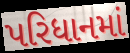
પરિધાનમાં